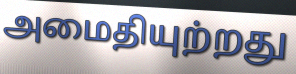
அமைதியுற்றது